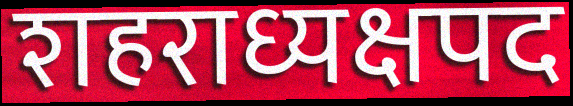
शहराध्यक्षपद